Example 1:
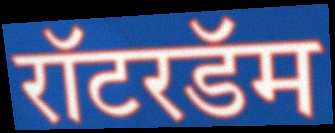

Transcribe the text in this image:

रॉटरडॅम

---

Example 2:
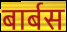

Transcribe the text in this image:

बार्बस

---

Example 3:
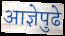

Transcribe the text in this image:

आज्ञेपुढे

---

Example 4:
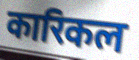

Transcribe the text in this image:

कारिकल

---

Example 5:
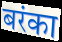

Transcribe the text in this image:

बरंका